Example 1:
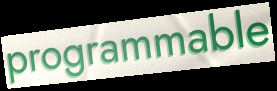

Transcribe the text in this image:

programmable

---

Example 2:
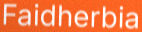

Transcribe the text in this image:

Faidherbia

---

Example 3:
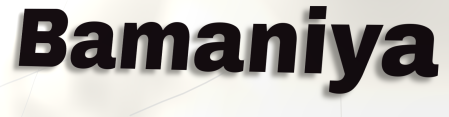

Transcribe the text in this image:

Bamaniya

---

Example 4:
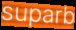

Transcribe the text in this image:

suparb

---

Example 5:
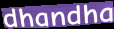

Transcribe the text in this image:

dhandha